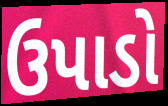
ઉપાડો